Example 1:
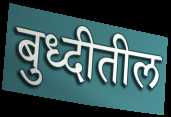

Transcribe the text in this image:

बुध्दीतील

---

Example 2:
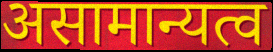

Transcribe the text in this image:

असामान्यत्व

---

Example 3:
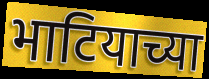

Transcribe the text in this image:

भाटियाच्या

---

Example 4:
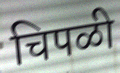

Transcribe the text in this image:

चिपळी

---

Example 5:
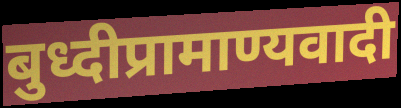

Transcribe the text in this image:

बुध्दीप्रामाण्यवादी